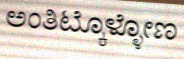
ಅಂತಿಟ್ಕೊಳ್ಳೋಣ